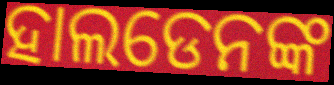
ହାଲଡେନଙ୍କ